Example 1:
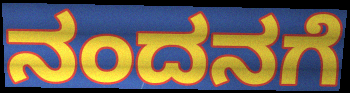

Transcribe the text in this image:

ನಂದನಗೆ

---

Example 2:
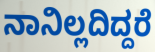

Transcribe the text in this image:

ನಾನಿಲ್ಲದಿದ್ದರೆ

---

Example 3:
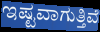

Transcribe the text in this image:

ಇಷ್ಟವಾಗುತ್ತಿವೆ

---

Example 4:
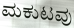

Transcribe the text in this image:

ಮಕುಟವು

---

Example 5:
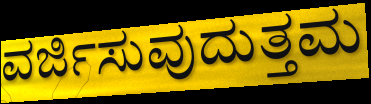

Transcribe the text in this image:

ವರ್ಜಿಸುವುದುತ್ತಮ